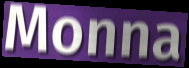
Monna